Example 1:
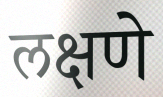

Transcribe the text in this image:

लक्षणे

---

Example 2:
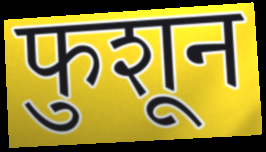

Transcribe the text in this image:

फुशून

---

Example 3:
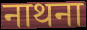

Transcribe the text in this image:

नाथना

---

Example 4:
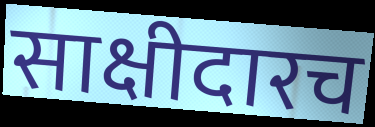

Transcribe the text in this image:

साक्षीदारच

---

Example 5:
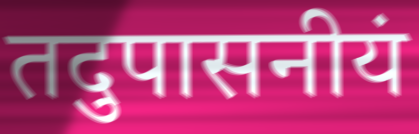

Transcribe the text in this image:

तदुपासनीयं